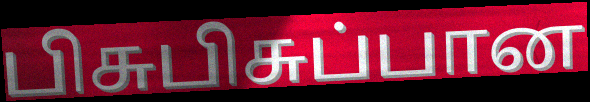
பிசுபிசுப்பான